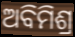
ଅବିମିଶ୍ର